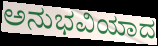
ಅನುಭವಿಯಾದ